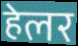
हेलर